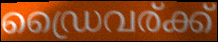
ഡ്രൈവര്ക്ക്